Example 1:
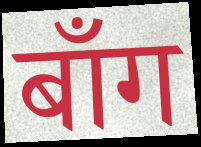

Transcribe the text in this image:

बाँग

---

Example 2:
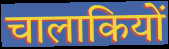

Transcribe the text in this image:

चालाकियों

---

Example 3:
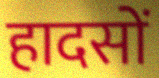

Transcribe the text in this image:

हादसों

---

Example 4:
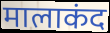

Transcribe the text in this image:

मालाकंद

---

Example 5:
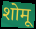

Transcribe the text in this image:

शोमू